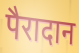
पैरादान